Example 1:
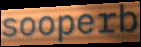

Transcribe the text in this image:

sooperb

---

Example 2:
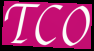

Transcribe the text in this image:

TCO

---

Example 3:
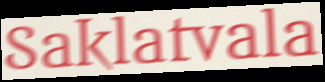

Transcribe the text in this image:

Saklatvala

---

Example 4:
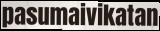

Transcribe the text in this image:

pasumaivikatan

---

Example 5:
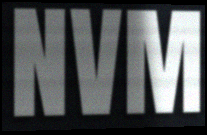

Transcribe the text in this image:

NVM